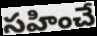
సహించే